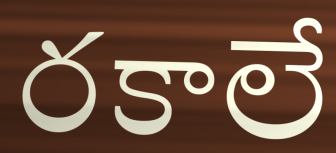
రకాలే